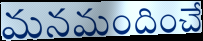
మనమందించే